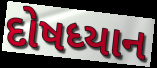
દોષધ્યાન